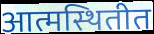
आत्मस्थितीत